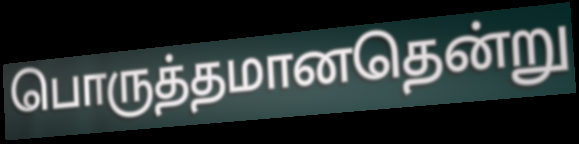
பொருத்தமானதென்று